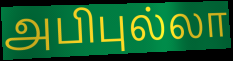
அபிபுல்லா